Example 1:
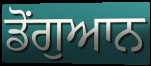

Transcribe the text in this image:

ਡੋਂਗੁਆਨ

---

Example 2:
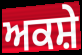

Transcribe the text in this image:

ਅਕਸ਼ੇ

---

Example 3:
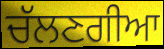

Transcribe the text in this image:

ਚੱਲਣਗੀਆ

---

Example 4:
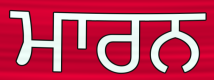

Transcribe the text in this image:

ਮਾਰਨ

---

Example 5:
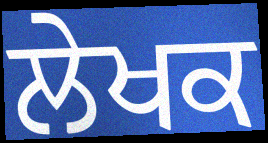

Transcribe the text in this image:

ਲੇਖਕ